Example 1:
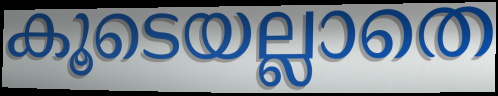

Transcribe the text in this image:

കൂടെയല്ലാതെ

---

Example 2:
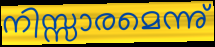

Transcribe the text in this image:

നിസ്സാരമെന്നു്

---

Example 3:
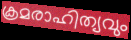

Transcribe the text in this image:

ക്രമരാഹിത്യവും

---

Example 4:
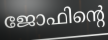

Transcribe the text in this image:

ജോഫിന്റെ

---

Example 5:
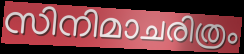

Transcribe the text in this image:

സിനിമാചരിത്രം